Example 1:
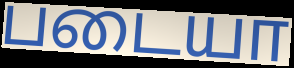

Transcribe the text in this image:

படையா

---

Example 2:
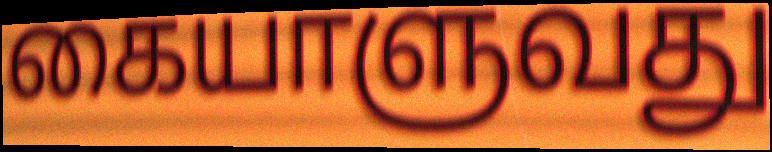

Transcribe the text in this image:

கையாளுவது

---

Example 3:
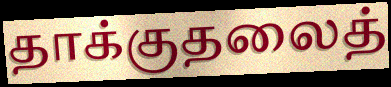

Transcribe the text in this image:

தாக்குதலைத்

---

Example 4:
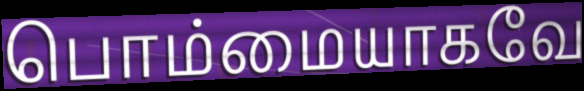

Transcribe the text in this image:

பொம்மையாகவே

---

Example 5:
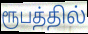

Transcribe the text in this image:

ரூபத்தில்